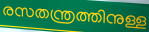
രസതന്ത്രത്തിനുള്ള